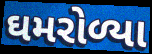
ઘમરોળ્યા